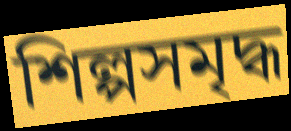
শিল্পসমৃদ্ধ